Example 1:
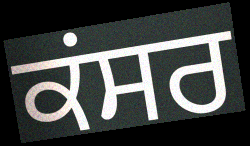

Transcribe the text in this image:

ਕਂਸਰ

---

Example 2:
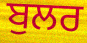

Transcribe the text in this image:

ਬੁਲਰ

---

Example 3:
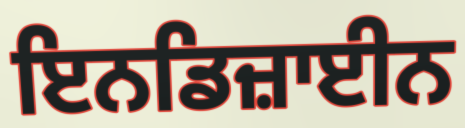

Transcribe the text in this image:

ਇਨਡਿਜ਼ਾਈਨ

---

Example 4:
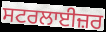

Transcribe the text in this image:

ਸਟਰਲਾਈਜ਼ਰ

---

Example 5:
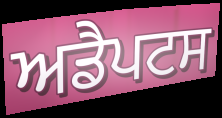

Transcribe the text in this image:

ਅਡੈਪਟਸ